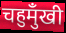
चहुमुँखी